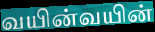
வயின்வயின்